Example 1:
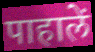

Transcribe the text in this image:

पाहालें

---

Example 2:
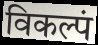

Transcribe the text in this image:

विकल्पं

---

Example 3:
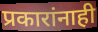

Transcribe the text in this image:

प्रकारांनाही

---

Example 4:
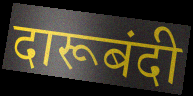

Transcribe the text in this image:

दारूबंदी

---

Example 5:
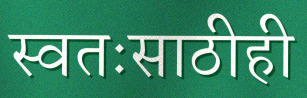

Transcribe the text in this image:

स्वतःसाठीही